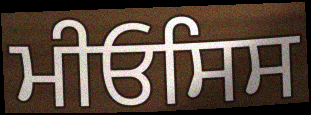
ਮੀਓਸਿਸ